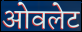
ओवलेट